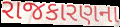
રાજકારણના